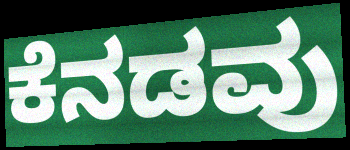
ಕೆನಡವು